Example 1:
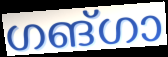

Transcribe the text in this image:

ഗങ്ഗാ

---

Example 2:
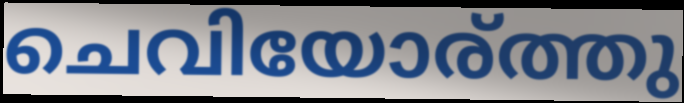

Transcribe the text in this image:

ചെവിയോര്ത്തു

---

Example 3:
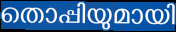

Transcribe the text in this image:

തൊപ്പിയുമായി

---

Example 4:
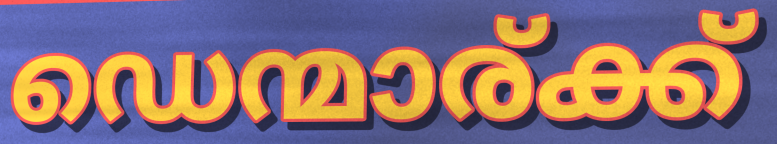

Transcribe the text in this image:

ഡെന്മാര്ക്ക്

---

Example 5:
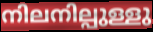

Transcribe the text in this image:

നിലനില്പുള്ളു